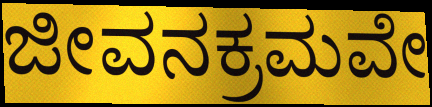
ಜೀವನಕ್ರಮವೇ